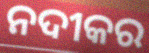
ନଦୀକର